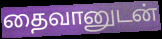
தைவானுடன்